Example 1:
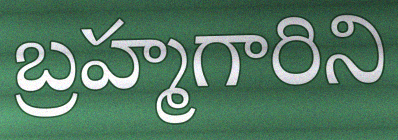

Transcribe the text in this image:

బ్రహ్మగారిని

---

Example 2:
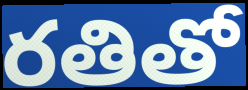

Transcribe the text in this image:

రతితో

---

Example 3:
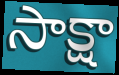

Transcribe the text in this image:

సాక్షా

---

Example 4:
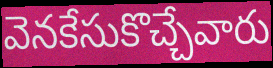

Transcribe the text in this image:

వెనకేసుకొచ్చేవారు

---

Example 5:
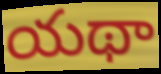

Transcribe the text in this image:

యథా